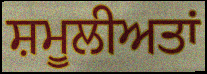
ਸ਼ਮੂਲੀਅਤਾਂ